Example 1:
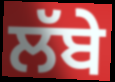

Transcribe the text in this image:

ਲੱਬੇ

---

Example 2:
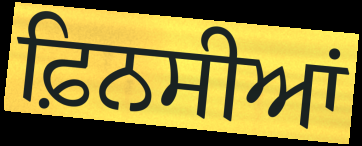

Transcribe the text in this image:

ਫ਼ਿਨਸੀਆਂ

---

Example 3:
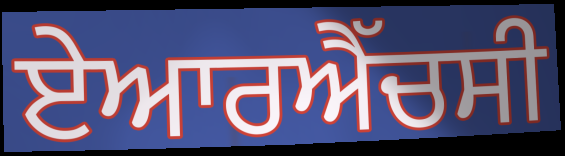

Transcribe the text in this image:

ਏਆਰਐੱਚਸੀ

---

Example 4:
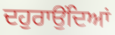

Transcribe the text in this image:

ਦਹੁਰਾਉਂਦਿਆਂ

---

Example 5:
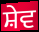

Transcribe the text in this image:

ਸ਼ੇਵ